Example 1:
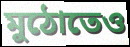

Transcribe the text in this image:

মুঠোতেও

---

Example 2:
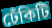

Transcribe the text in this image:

ঢেঁকিটি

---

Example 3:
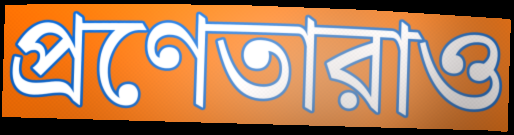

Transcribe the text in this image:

প্রণেতারাও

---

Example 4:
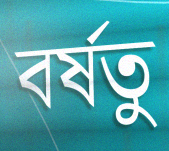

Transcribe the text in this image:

বর্ষতু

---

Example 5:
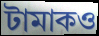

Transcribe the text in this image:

টামাকও